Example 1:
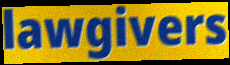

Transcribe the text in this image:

lawgivers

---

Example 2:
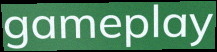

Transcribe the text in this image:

gameplay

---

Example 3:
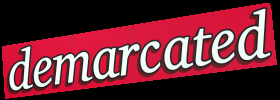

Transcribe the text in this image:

demarcated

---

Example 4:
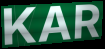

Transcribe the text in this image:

KAR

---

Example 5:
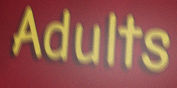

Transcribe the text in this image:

Adults